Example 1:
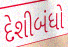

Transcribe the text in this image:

દેશીબંધો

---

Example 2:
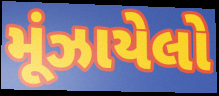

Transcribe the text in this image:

મૂંઝાયેલો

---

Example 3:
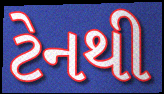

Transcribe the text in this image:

ટેનથી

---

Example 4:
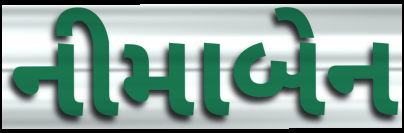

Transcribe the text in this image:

નીમાબેન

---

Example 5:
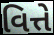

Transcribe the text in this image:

વિત્તે